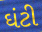
ઘંટી